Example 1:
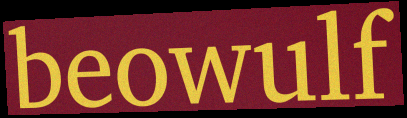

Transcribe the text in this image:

beowulf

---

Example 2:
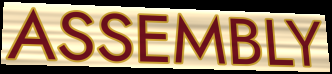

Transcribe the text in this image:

ASSEMBLY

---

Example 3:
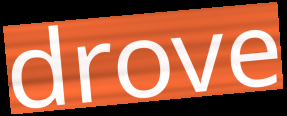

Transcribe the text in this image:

drove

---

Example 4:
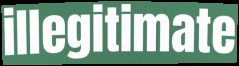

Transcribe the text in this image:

illegitimate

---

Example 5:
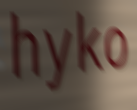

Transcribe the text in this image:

hyko